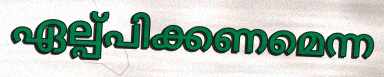
ഏല്പ്പിക്കണമെന്ന